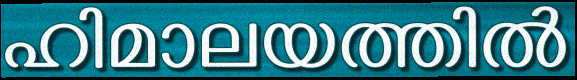
ഹിമാലയത്തിൽ